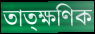
তাত্ক্ষণিক